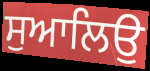
ਸੁਆਲਿਉ